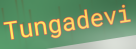
Tungadevi